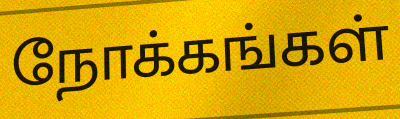
நோக்கங்கள்